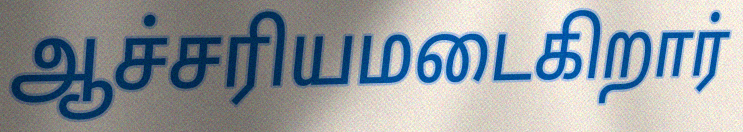
ஆச்சரியமடைகிறார்